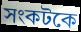
সংকটকে